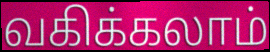
வகிக்கலாம்